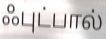
ஃபுட்பால்